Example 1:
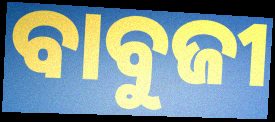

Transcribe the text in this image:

ବାବୁଜୀ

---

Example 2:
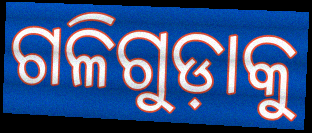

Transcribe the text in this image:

ଗଳିଗୁଡ଼ାକୁ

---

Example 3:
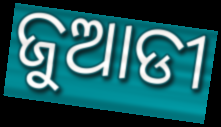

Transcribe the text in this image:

ଜୁଆଡୀ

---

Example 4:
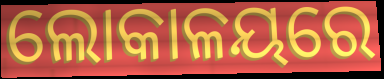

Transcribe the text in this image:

ଲୋକାଳୟରେ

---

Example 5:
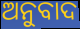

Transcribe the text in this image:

ଅନୁବାଦ